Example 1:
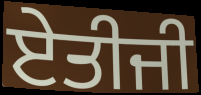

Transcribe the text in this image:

ਏਤੀਜੀ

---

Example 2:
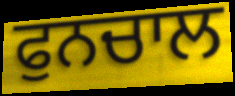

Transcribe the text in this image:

ਫੁਨਚਾਲ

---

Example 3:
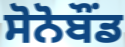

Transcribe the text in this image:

ਸੋਨੋਬੌਂਡ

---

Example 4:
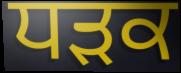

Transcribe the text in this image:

ਧੜਕ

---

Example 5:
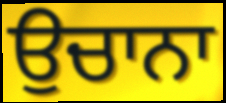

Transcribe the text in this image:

ਉਚਾਨਾ